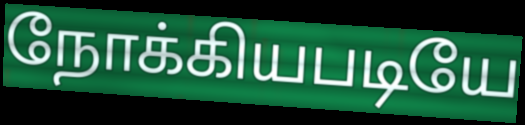
நோக்கியபடியே